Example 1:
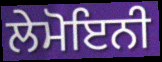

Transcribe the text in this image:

ਲੇਮੋਇਨੀ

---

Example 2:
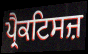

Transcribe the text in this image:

ਪ੍ਰੈਕਟਿਸਜ਼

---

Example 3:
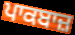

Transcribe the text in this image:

ਪਾਕਬਾਜ਼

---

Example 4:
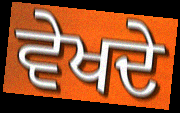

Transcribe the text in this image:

ਵੇਖਦੇ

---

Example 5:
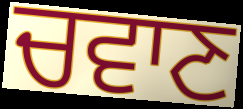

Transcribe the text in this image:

ਚਵਾਣ